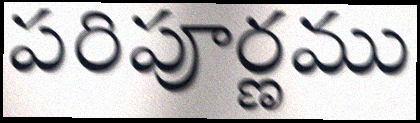
పరిపూర్ణము